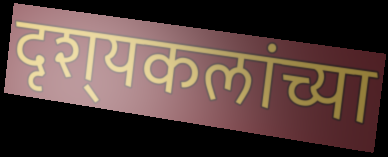
दृश्यकलांच्या